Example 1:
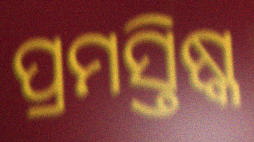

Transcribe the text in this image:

ପ୍ରମସ୍ତିଷ୍କ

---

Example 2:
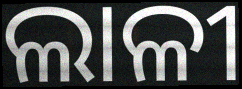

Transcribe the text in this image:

ଲାଳୀ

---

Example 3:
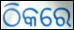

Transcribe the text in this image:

ଠିକରେ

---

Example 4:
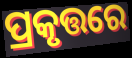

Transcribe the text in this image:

ପ୍ରକୃତ୍ତରେ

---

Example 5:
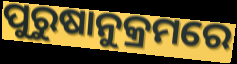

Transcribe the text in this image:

ପୁରୁଷାନୁକ୍ରମରେ